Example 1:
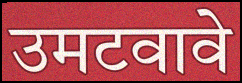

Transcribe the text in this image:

उमटवावे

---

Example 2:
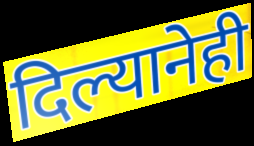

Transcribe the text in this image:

दिल्यानेही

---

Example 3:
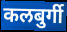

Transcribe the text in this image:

कलबुर्गी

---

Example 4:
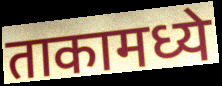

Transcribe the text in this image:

ताकामध्ये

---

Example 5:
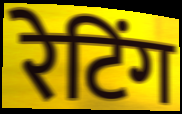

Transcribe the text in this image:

रेटिंग